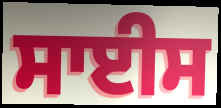
ਸਾਈਸ